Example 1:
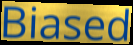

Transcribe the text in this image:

Biased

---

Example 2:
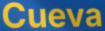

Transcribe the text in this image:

Cueva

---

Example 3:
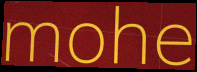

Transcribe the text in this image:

mohe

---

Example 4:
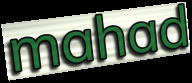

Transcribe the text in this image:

mahad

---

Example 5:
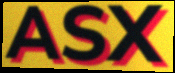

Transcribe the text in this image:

ASX